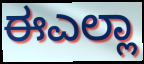
ಈಎಲ್ಲಾ